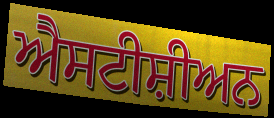
ਐਸਟੀਸ਼ੀਅਨ